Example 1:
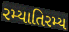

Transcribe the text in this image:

રમ્યાતિરમ્ય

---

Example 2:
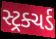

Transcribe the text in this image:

સ્ટ્રક્ચર્ડ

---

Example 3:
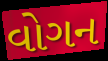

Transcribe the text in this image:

વોગન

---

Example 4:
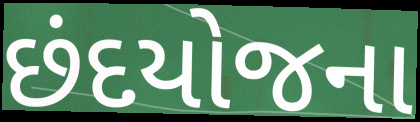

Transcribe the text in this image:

છંદયોજના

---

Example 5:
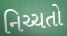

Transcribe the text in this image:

નિચ્ચતો